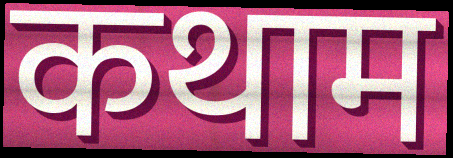
कथाम